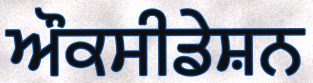
ਔਕਸੀਡੇਸ਼ਨ